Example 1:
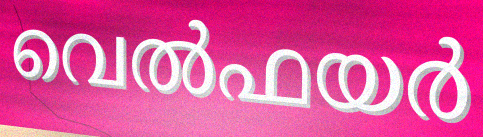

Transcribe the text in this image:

വെൽഫയർ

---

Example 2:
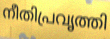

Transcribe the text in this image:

നീതിപ്രവൃത്തി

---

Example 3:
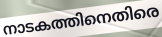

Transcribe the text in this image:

നാടകത്തിനെതിരെ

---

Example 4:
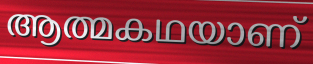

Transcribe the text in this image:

ആത്മകഥയാണ്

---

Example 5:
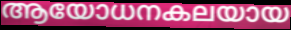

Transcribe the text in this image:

ആയോധനകലയായ